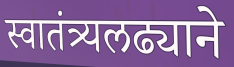
स्वातंत्र्यलढ्याने